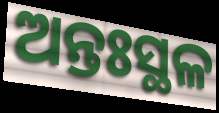
ଅନ୍ତଃସ୍ଥଳ